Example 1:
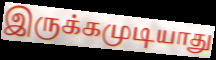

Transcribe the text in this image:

இருக்கமுடியாது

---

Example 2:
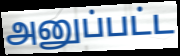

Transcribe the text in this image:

அனுப்பட்ட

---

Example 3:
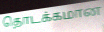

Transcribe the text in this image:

தொடக்கமான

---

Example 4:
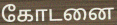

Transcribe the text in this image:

கோடனை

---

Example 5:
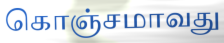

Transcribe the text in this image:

கொஞ்சமாவது